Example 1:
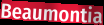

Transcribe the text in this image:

Beaumontia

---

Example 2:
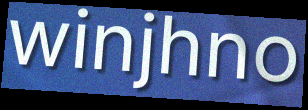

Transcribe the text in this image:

winjhno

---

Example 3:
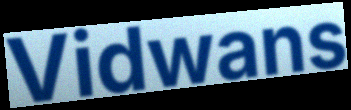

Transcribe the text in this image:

Vidwans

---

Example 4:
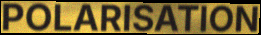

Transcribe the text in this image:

POLARISATION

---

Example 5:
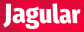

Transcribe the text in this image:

Jagular